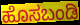
ಹೊಸಬಂಡಿ